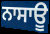
ਨਾਸਾਊ